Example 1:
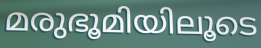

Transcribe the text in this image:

മരുഭൂമിയിലൂടെ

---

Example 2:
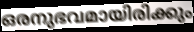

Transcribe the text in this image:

ഒരനുഭവമായിരിക്കും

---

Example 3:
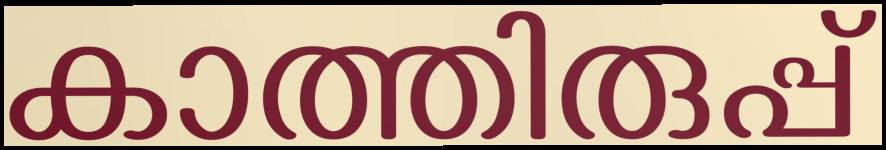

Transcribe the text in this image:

കാത്തിരുപ്പ്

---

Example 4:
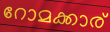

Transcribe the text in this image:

റോമക്കാര്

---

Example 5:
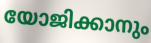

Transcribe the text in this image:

യോജിക്കാനും